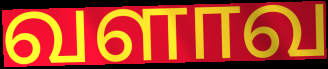
வளாவ